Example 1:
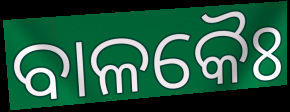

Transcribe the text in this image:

ବାଳକୈଃ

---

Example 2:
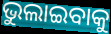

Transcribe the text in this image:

ଭୁଲାଇବାକୁ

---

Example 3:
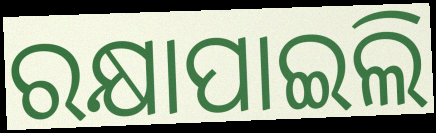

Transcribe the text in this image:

ରକ୍ଷାପାଇଲି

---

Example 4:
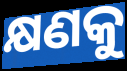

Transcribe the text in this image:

କ୍ଷଣକୁ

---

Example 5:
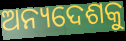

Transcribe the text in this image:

ଅନ୍ୟଦେଶକୁ